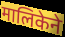
मालिकेने